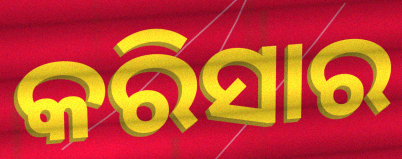
କରିସାର